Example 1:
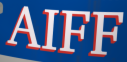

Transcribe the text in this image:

AIFF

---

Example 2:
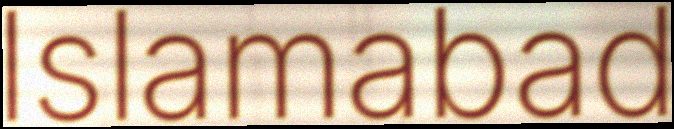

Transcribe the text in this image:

Islamabad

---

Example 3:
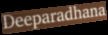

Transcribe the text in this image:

Deeparadhana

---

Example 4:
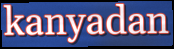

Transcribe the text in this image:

kanyadan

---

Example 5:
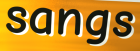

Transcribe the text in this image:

sangs